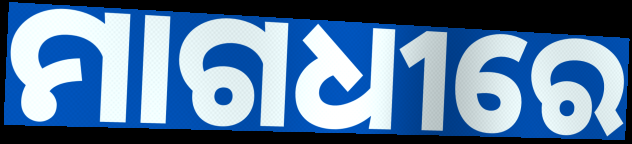
ମାଗଧୀରେ